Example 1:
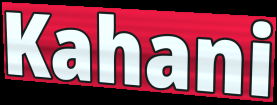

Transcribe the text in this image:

Kahani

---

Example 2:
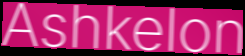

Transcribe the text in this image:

Ashkelon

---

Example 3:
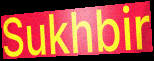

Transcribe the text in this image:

Sukhbir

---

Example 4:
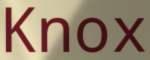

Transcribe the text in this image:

Knox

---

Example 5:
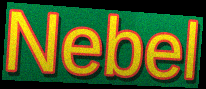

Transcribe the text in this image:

Nebel